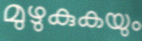
മുഴുകുകയും